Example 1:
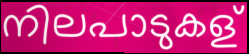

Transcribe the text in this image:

നിലപാടുകള്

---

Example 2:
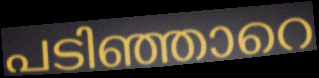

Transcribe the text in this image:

പടിഞ്ഞാറെ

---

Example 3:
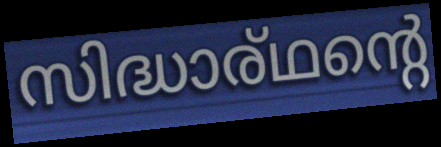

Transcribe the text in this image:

സിദ്ധാര്ഥന്റെ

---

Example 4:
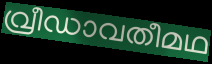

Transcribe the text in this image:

വ്രീഡാവതീമഥ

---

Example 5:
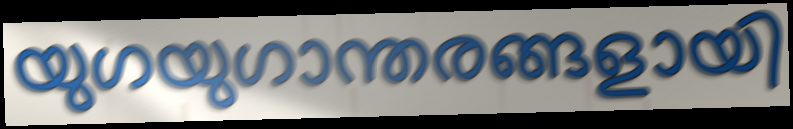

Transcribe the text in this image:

യുഗയുഗാന്തരങ്ങളായി